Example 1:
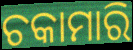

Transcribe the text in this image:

ଚକାମାରି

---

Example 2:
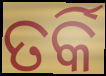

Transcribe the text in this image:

ତର୍କି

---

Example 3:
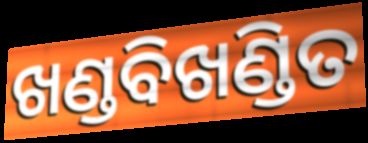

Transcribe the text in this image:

ଖଣ୍ଡବିଖଣ୍ଡିତ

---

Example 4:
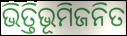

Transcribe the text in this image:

ଭିତ୍ତିଭୂମିଜନିତ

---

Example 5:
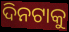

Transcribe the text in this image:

ଦିନଟାକୁ